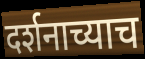
दर्शनाच्याच